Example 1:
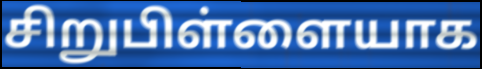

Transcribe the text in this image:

சிறுபிள்ளையாக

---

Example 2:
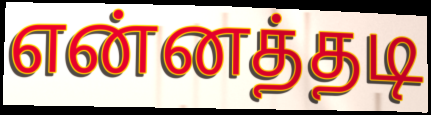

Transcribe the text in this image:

என்னத்தடி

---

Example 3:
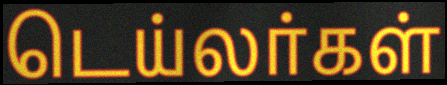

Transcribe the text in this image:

டெய்லர்கள்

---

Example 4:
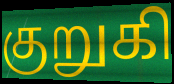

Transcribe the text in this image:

குறுகி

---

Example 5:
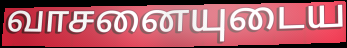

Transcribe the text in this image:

வாசனையுடைய